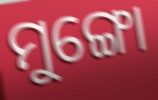
ମୁଙ୍ଗୋ